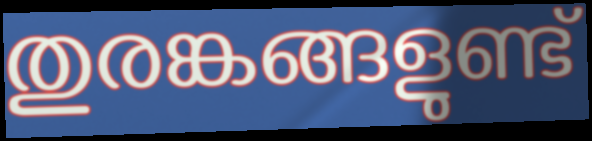
തുരങ്കങ്ങളുണ്ട്